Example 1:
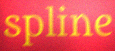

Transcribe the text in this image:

spline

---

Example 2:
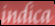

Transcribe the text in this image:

indica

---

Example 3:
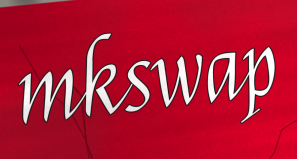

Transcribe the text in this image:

mkswap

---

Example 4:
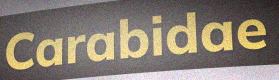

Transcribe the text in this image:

Carabidae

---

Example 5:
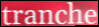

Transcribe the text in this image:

tranche